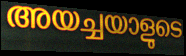
അയച്ചയാളുടെ